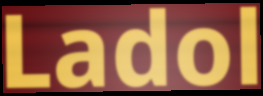
Ladol